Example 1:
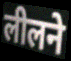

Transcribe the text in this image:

लीलने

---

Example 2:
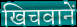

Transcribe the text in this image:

खिचवानें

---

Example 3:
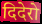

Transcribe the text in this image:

दिदेरो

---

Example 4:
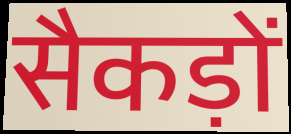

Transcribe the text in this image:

सैकड़ों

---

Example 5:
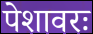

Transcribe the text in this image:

पेशावरः